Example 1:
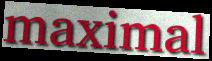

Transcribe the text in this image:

maximal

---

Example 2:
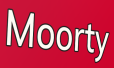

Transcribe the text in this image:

Moorty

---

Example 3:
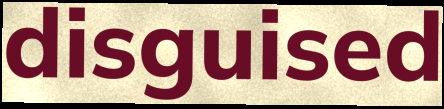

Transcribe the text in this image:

disguised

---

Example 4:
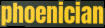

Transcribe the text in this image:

phoenician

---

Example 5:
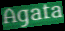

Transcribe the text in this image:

Agata